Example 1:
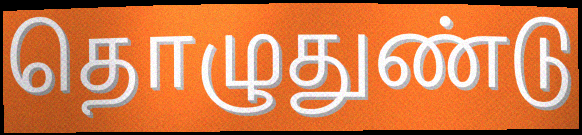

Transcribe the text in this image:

தொழுதுண்டு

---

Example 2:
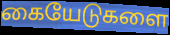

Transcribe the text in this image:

கையேடுகளை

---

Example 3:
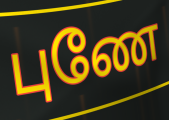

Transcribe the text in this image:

புணே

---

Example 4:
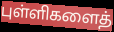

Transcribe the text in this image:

புள்ளிகளைத்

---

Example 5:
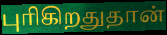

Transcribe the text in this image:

புரிகிறதுதான்